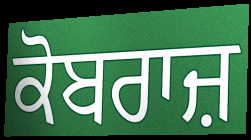
ਕੋਬਰਾਜ਼